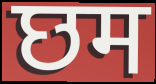
छम